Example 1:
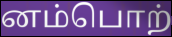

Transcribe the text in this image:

னம்பொற்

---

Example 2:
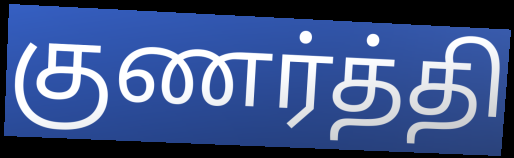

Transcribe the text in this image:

குணர்த்தி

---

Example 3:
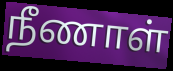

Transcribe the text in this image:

நீணாள்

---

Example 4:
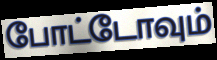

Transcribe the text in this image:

போட்டோவும்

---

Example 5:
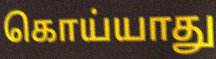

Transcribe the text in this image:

கொய்யாது